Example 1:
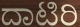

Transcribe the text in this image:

ದಾಟಿರಿ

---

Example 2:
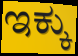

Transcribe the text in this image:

ಇಕ್ಕು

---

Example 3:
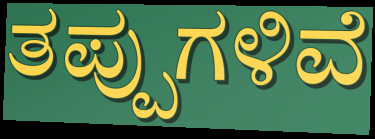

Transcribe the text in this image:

ತಪ್ಪುಗಳಿವೆ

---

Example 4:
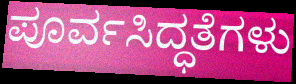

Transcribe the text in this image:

ಪೂರ್ವಸಿದ್ಧತೆಗಳು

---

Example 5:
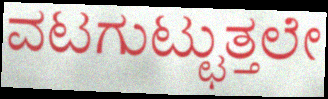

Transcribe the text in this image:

ವಟಗುಟ್ಟುತ್ತಲೇ